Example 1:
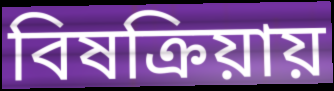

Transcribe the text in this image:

বিষক্রিয়ায়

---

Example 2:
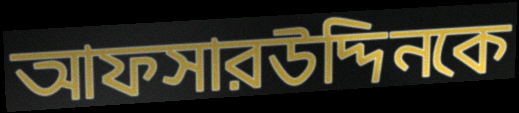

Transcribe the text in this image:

আফসারউদ্দিনকে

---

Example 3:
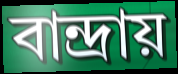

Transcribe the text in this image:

বান্দ্রায়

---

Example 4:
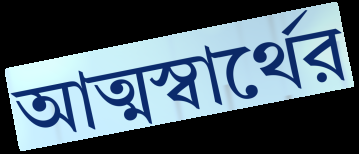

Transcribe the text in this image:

আত্মস্বার্থের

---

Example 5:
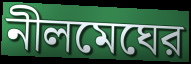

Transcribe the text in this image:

নীলমেঘের